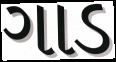
ગાડ